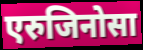
एरुजिनोसा